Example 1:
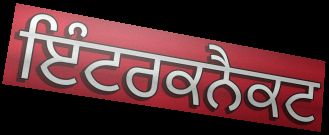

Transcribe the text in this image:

ਇੰਟਰਕਨੈਕਟ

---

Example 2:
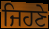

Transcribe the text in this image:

ਜਿਹਣੇ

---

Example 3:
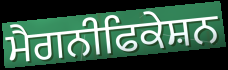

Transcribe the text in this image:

ਮੈਗਨੀਫਿਕੇਸ਼ਨ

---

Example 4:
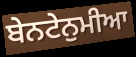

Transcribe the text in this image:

ਬੇਨਟੇਨੁਮੀਆ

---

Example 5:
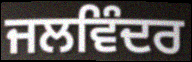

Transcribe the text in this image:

ਜਲਵਿੰਦਰ